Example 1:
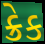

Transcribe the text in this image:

ક્રેક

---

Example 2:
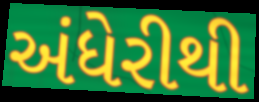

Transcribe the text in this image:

અંધેરીથી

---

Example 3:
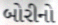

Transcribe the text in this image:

બોરીનો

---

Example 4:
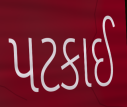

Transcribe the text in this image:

પટકાઈ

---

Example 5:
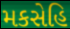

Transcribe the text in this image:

મકસેહિ